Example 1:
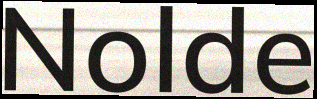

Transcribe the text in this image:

Nolde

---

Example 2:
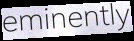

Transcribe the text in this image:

eminently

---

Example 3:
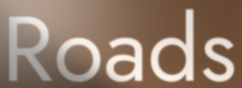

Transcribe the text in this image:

Roads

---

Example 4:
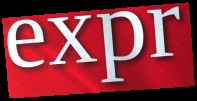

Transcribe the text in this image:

expr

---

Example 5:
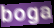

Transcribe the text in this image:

boga